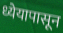
ध्येयापासून